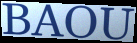
BAOU